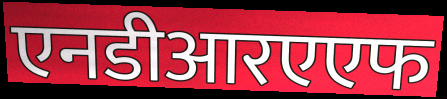
एनडीआरएएफ